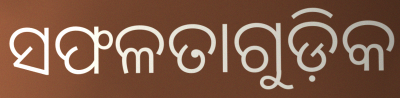
ସଫଳତାଗୁଡ଼ିକ